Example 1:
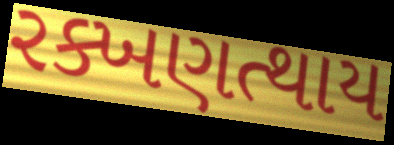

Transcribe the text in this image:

રક્ખણત્થાય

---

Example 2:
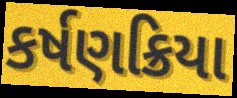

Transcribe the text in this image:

કર્ષણક્રિયા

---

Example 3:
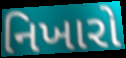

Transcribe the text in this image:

નિખારો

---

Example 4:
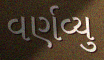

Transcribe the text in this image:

વર્ણવ્યુ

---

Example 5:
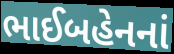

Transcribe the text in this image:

ભાઈબહેનનાં